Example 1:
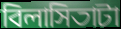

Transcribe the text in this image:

বিলাসিতাটা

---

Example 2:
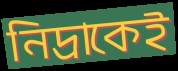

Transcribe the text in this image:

নিদ্রাকেই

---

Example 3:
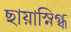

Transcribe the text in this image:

ছায়াস্নিগ্ধ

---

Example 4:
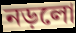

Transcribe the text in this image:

নড়লো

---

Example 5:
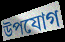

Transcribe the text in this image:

উপযোগ